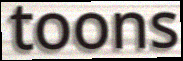
toons